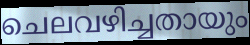
ചെലവഴിച്ചതായും